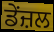
ਡੇਂਜ਼ਲ